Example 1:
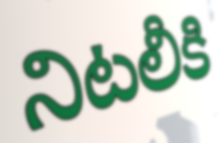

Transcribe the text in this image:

నిటలీకి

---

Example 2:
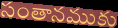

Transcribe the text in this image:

సంతానముకు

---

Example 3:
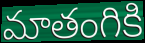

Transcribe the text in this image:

మాతంగికి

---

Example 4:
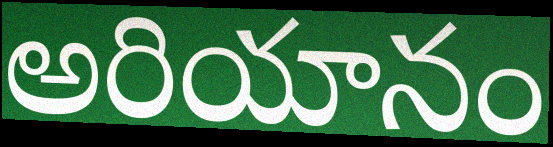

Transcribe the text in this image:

అరియానం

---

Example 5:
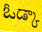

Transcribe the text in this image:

ఓడ్కా